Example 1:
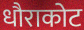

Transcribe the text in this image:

धौराकोट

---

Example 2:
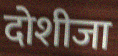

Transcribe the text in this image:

दोशीजा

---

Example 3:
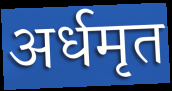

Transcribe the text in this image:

अर्धमृत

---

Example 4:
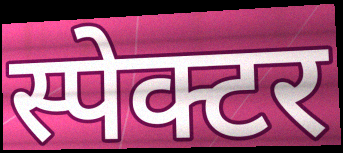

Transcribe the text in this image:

स्पेक्टर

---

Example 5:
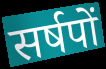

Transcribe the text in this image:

सर्षपों